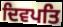
ਦਿਵਪਤਿ